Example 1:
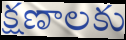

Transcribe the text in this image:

క్షణాలకు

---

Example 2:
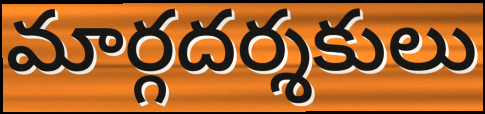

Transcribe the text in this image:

మార్గదర్శకులు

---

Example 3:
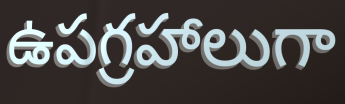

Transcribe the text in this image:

ఉపగ్రహాలుగా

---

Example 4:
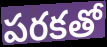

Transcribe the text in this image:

పరకతో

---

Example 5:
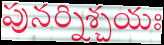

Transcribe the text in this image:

పునర్నిశ్చయః